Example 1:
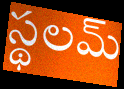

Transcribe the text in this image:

స్థలమ్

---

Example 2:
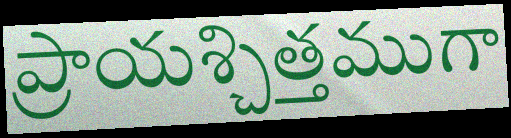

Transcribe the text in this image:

ప్రాయశ్చిత్తముగా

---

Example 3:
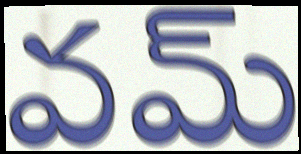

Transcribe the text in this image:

వమ్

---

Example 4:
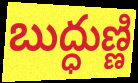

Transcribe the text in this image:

బుద్ధుణ్ణి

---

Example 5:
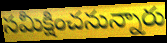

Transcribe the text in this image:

సమీక్షించనున్నారు